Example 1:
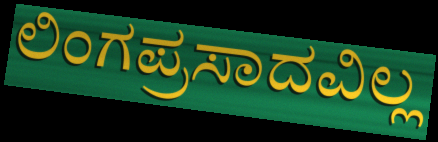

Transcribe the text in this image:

ಲಿಂಗಪ್ರಸಾದವಿಲ್ಲ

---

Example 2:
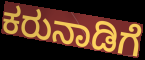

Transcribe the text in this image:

ಕರುನಾಡಿಗೆ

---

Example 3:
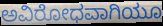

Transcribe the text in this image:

ಅವಿರೋಧವಾಗಿಯೂ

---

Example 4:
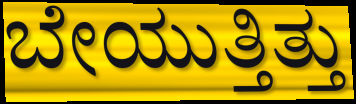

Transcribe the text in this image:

ಬೇಯುತ್ತಿತ್ತು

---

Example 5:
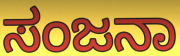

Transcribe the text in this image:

ಸಂಜನಾ